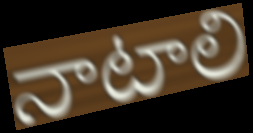
నాటాలి